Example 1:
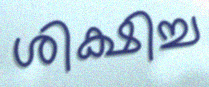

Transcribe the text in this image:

ശിക്ഷിച്ച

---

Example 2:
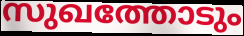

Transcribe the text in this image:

സുഖത്തോടും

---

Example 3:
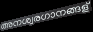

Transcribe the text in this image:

അനശ്വരഗാനങ്ങള്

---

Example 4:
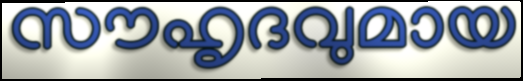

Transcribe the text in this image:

സൗഹൃദവുമായ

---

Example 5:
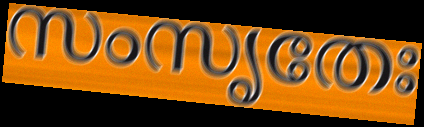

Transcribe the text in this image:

സംസൃതേഃ